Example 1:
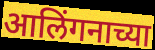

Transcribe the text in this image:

आलिंगनाच्या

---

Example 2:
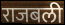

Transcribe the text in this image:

राजबली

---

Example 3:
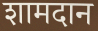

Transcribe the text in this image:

शामदान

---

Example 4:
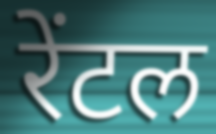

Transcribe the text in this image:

रेंटल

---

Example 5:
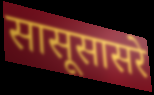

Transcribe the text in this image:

सासूसासरे